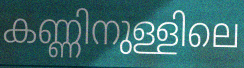
കണ്ണിനുള്ളിലെ